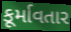
કૂર્માવતાર